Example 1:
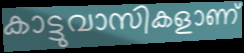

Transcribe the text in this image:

കാട്ടുവാസികളാണ്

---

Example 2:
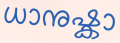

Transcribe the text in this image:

ധാനുഷ്കാ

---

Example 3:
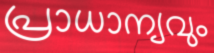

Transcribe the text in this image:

പ്രാധാന്യവും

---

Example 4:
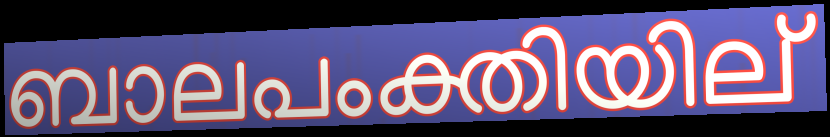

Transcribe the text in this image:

ബാലപംക്തിയില്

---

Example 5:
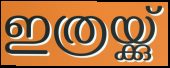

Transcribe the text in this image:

ഇത്രയ്ക്കു്